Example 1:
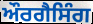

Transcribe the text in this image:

ਔਰਗੈਸਿੰਗ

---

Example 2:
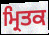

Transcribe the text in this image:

ਮ੍ਰਿਤਕ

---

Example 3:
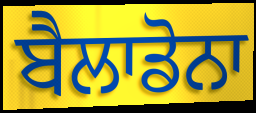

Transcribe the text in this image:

ਬੈਲਾਡੋਨਾ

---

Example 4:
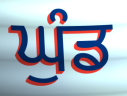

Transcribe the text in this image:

ਘੁੰਡ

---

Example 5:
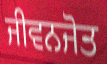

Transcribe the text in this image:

ਜੀਵਨਜੋਤ